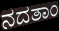
ನದತಾಂ